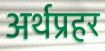
अर्थप्रहर